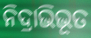
ନିଦ୍ରାଭିଭୂତ